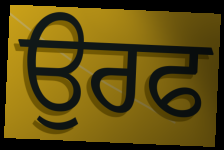
ਉਰਫ